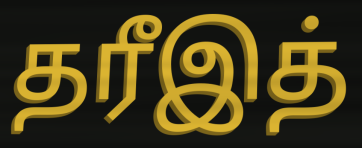
தரீஇத்